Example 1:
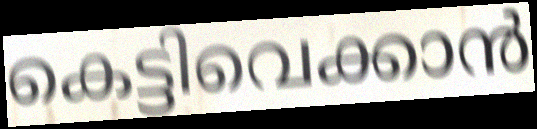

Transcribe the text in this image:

കെട്ടിവെക്കാൻ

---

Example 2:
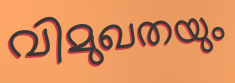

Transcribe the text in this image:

വിമുഖതയും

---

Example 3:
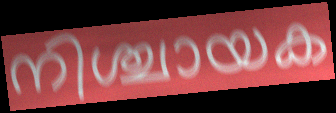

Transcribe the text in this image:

നിശ്ചായക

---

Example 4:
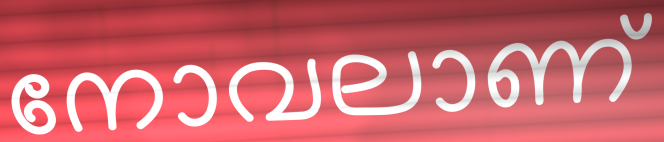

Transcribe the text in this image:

നോവലാണ്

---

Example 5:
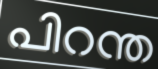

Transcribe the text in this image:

പിറന്ത